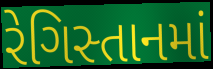
રેગિસ્તાનમાં